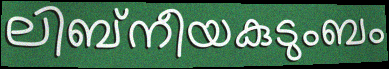
ലിബ്നീയകുടുംബം